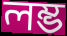
লম্ভ